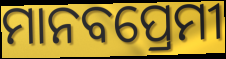
ମାନବପ୍ରେମୀ